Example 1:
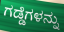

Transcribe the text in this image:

ಗಡ್ಡೆಗಳನ್ನು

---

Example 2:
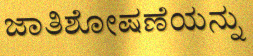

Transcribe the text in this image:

ಜಾತಿಶೋಷಣೆಯನ್ನು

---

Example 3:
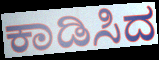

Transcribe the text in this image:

ಕಾಡಿಸಿದ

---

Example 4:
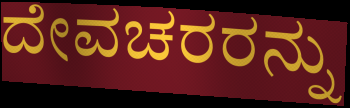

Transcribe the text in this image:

ದೇವಚರರನ್ನು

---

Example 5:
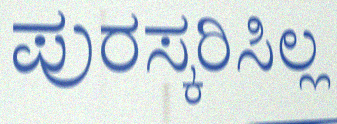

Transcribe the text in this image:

ಪುರಸ್ಕರಿಸಿಲ್ಲ